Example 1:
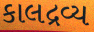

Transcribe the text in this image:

કાલદ્રવ્ય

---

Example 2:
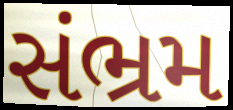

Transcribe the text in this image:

સંભ્રમ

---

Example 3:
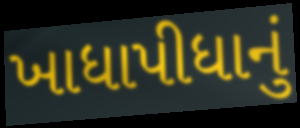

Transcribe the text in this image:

ખાધાપીધાનું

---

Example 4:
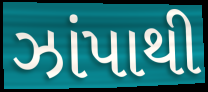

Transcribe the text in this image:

ઝાંપાથી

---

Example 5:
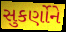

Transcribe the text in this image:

સુકર્ણોને